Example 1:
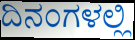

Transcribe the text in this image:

ದಿನಂಗಳಲ್ಲಿ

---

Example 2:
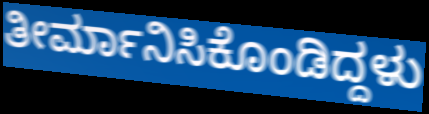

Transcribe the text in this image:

ತೀರ್ಮಾನಿಸಿಕೊಂಡಿದ್ದಳು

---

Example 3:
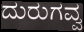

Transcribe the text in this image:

ದುರುಗವ್ವ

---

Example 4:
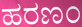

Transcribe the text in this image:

ಹರಣಂ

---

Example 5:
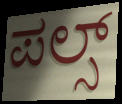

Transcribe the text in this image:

ಪಲ್ಸ್